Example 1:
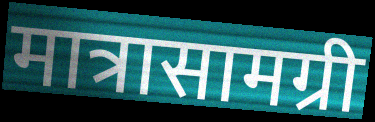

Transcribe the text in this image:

मात्रासामग्री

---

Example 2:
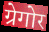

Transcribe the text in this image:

ग्रेगोर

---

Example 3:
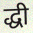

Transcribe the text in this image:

द्धी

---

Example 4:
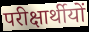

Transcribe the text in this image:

परीक्षार्थीयों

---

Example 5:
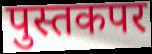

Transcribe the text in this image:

पुस्तकपर